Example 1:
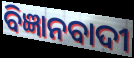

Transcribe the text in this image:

ବିଜ୍ଞାନବାଦୀ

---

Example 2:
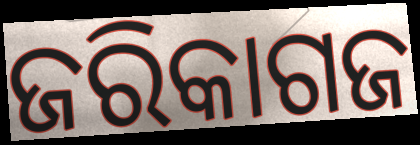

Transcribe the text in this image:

ଜରିକାଗଜ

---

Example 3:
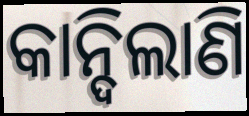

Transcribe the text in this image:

କାନ୍ଦିଲାଣି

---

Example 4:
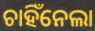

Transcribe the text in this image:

ଚାହିଁନେଲା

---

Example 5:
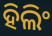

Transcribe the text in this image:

ହିଲିଂ